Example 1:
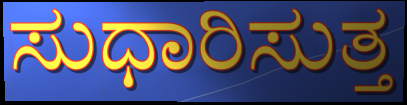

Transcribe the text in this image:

ಸುಧಾರಿಸುತ್ತ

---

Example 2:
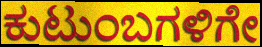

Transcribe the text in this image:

ಕುಟುಂಬಗಳಿಗೇ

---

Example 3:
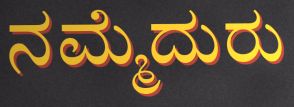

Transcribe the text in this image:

ನಮ್ಮೆದುರು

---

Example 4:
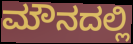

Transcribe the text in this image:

ಮೌನದಲ್ಲಿ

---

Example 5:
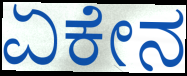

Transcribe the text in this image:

ಏಕೇನ